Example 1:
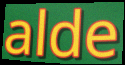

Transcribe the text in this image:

alde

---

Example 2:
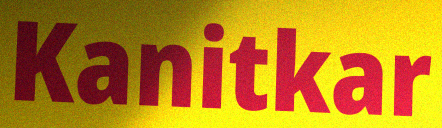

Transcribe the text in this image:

Kanitkar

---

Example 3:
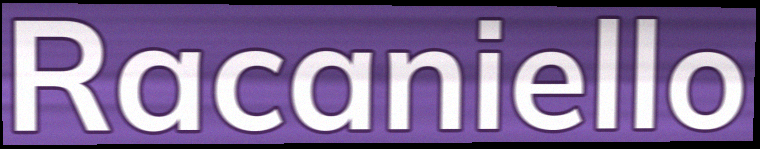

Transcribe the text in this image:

Racaniello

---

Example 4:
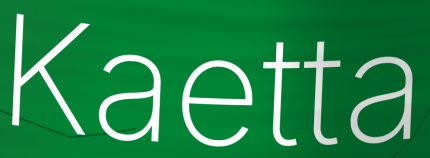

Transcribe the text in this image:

Kaetta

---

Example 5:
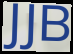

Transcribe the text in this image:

JJB